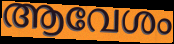
ആവേശം